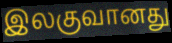
இலகுவானது